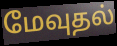
மேவுதல்